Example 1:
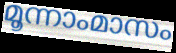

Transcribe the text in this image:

മൂന്നാംമാസം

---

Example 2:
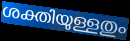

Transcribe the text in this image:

ശക്തിയുള്ളതും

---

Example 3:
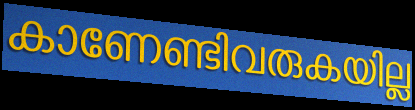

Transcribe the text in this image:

കാണേണ്ടിവരുകയില്ല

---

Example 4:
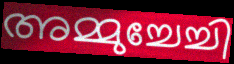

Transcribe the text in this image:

അമ്മുച്ചേച്ചി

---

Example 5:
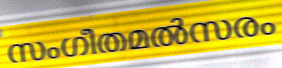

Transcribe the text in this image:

സംഗീതമൽസരം